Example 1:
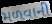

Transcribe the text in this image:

મળવાની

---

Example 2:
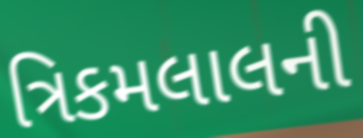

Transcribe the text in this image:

ત્રિકમલાલની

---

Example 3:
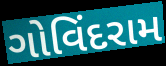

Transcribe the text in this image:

ગોવિંદરામ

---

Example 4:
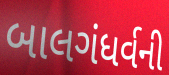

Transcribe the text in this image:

બાલગંધર્વની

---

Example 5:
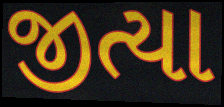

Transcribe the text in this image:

જીત્યા